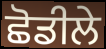
ਛੋਡੀਲੇ